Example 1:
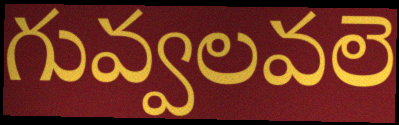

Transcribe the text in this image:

గువ్వలవలె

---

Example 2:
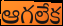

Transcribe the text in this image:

ఆగలేక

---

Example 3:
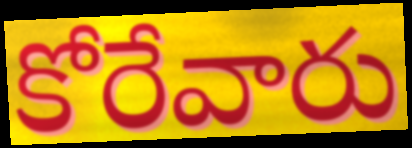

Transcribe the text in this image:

కోరేవారు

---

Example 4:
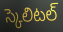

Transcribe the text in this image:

స్కెలిటల్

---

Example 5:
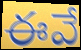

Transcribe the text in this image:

ఈవే